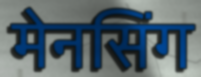
मेनसिंग